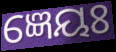
ଜ୍ଞେୟଃ